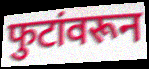
फुटांवरून